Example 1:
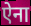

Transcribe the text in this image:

ऐना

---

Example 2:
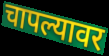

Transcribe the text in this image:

चापल्यावर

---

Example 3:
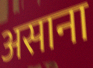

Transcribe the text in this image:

असाना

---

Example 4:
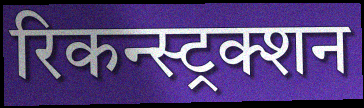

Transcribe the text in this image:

रिकन्स्ट्रक्शन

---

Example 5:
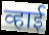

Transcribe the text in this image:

व्हाई